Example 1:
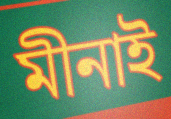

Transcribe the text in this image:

মীনাই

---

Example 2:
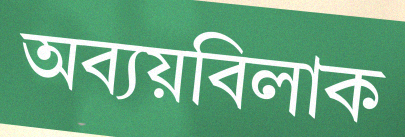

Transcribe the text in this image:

অব্যয়বিলাক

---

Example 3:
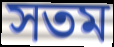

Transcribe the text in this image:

সতম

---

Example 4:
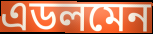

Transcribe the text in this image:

এডলমেন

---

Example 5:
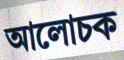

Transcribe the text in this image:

আলোচক